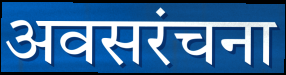
अवसरंचना